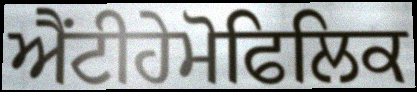
ਐਂਟੀਹੇਮੋਫਿਲਿਕ